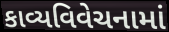
કાવ્યવિવેચનામાં